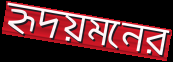
হৃদয়মনের